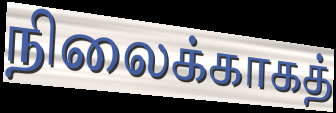
நிலைக்காகத்